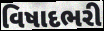
વિષાદભરી